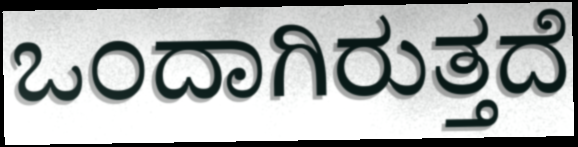
ಒಂದಾಗಿರುತ್ತದೆ